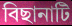
বিছানাটি